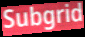
Subgrid